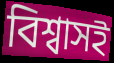
বিশ্বাসই